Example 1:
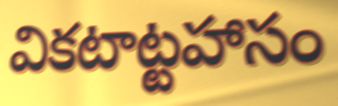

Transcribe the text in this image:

వికటాట్టహాసం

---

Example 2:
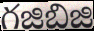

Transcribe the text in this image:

గజిబిజి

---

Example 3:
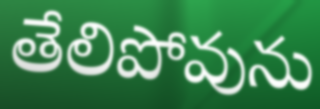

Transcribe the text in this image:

తేలిపోవును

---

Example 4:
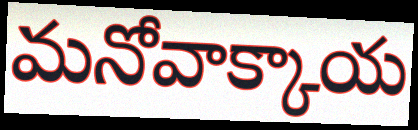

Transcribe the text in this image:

మనోవాక్కాయ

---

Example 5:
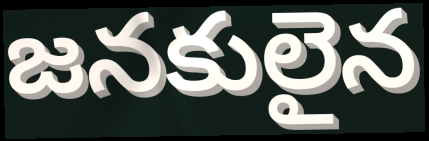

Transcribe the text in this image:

జనకులైన